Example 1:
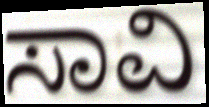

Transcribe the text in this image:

ಸಾವಿ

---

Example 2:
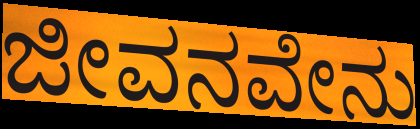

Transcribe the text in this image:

ಜೀವನವೇನು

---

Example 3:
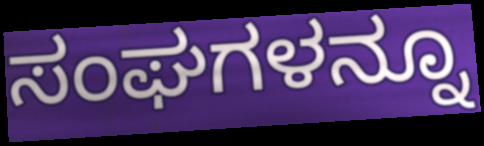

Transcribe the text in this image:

ಸಂಘಗಳನ್ನೂ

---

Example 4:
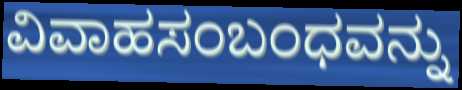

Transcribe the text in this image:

ವಿವಾಹಸಂಬಂಧವನ್ನು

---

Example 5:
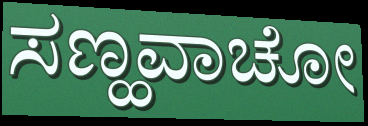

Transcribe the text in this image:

ಸಣ್ಹವಾಚೋ